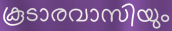
കൂടാരവാസിയും